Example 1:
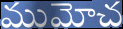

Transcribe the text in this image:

ముమోచ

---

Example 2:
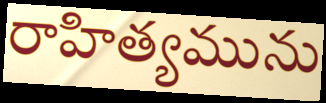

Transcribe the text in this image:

రాహిత్యమును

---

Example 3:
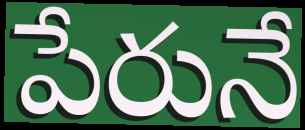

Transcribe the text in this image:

పేరునే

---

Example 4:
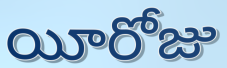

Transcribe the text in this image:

యీరోజు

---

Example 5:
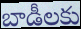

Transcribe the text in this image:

బాడీలకు